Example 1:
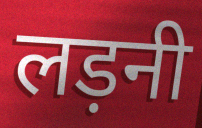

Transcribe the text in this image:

लड़नी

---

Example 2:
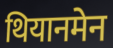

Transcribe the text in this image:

थियानमेन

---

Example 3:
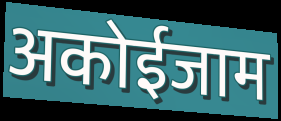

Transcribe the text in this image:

अकोईजाम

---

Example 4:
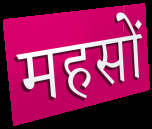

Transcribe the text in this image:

महसों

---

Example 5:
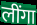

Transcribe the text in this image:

लींगा